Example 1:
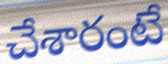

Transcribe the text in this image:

చేశారంటే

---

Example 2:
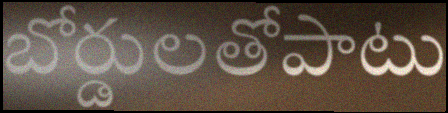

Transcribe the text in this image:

బోర్డులతోపాటు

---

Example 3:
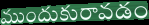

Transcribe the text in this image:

ముందుకురావడం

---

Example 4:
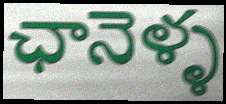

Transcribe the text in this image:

ఛానెళ్ళ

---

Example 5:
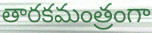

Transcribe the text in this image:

తారకమంత్రంగా